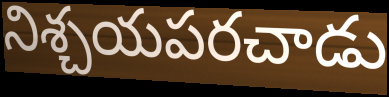
నిశ్చయపరచాడు